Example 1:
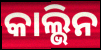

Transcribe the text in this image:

କାଲ୍ଭିନ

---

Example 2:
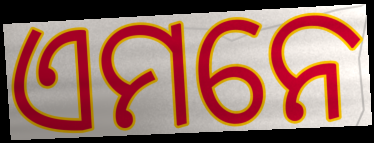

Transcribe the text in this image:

ଏମନେ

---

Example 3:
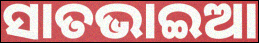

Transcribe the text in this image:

ସାତଭାଇଆ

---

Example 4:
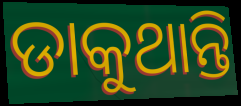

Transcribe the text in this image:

ଡାକୁଥାନ୍ତି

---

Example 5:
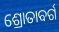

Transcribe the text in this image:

ଶ୍ରୋତାବର୍ଗ